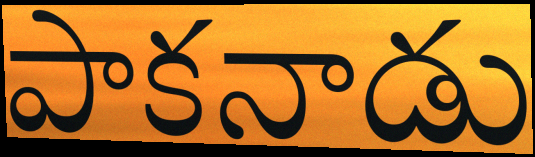
పాకనాడు